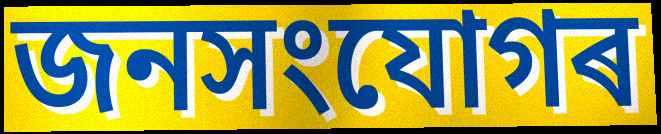
জনসংযোগৰ